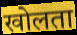
खोलता